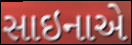
સાઇનાએ